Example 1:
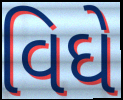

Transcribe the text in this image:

વિઘે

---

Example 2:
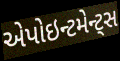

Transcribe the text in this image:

એપોઇન્ટમેન્ટ્સ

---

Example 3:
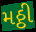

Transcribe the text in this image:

મઠ્ઠી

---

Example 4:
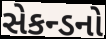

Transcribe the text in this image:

સેકન્ડનો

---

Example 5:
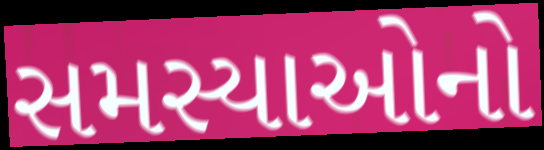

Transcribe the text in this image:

સમસ્યાઓનો